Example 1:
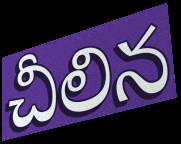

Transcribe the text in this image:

చీలిన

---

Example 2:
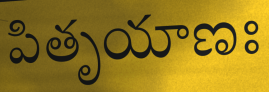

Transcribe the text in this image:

పితృయాణః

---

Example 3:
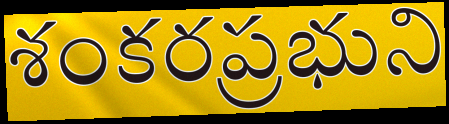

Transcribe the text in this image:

శంకరప్రభుని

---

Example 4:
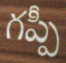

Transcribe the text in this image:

గప్పీ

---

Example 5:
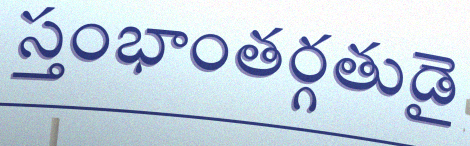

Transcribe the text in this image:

స్తంభాంతర్గతుడై